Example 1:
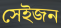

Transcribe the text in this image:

সেইজন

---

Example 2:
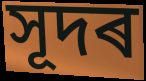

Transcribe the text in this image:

সূদৰ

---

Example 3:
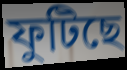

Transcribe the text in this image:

ফুটিছে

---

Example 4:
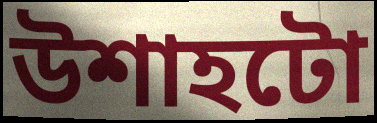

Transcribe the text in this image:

উশাহটো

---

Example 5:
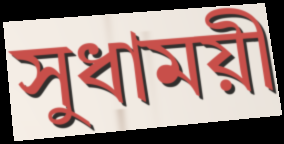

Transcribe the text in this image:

সুধাময়ী